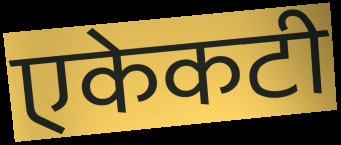
एकेकटी